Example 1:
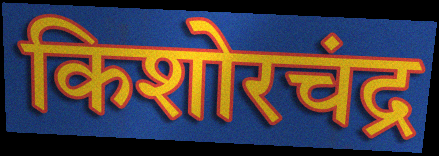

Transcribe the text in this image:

किशोरचंद्र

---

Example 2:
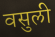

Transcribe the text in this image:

वसुली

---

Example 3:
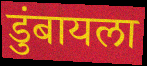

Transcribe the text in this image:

डुंबायला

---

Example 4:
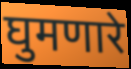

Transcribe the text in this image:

घुमणारे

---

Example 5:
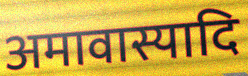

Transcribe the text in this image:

अमावास्यादि